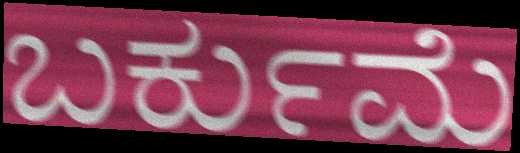
ಬರ್ಕುಮೆ